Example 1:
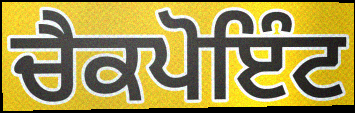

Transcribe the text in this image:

ਚੈਕਪੋਇੰਟ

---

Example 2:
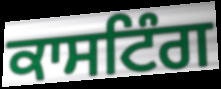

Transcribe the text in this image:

ਕਾਸਟਿੰਗ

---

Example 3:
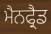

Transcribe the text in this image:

ਮੈਨਫ੍ਰੈਡ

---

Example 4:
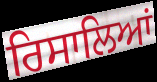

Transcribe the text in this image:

ਰਿਸਾਲਿਆਂ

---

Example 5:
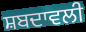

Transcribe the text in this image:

ਸ਼ਬਦਾਵਲੀ